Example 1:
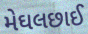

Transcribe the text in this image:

મેઘલછાઈ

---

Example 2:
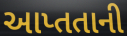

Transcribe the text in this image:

આપ્તતાની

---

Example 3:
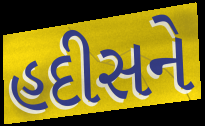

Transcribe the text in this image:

હદીસને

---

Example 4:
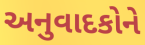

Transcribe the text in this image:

અનુવાદકોને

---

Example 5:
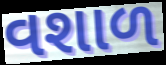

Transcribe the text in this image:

વશાળ